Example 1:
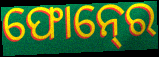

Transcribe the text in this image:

ଫୋନ୍‍ରେ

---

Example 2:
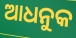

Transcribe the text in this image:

ଆଧନୁକ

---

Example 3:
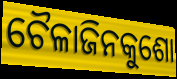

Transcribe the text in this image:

ଚୈଳାଜିନକୁଶୋ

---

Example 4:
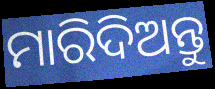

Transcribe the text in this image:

ମାରିଦିଅନ୍ତୁ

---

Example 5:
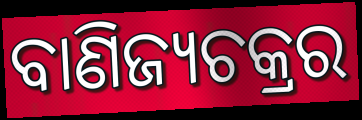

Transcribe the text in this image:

ବାଣିଜ୍ୟଚକ୍ରର